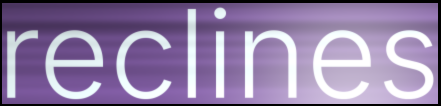
reclines